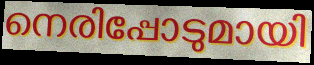
നെരിപ്പോടുമായി